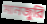
মানজুরি